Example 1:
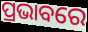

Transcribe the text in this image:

ପ୍ରଭାବରେ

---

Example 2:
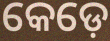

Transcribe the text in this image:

କେଡ଼େ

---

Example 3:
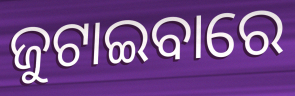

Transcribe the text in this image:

ଜୁଟାଇବାରେ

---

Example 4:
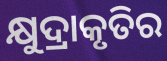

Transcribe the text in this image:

କ୍ଷୁଦ୍ରାକୃତିର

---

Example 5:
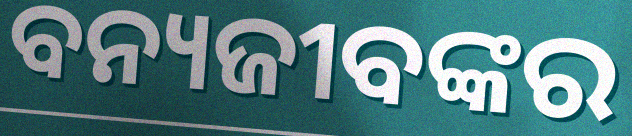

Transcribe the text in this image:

ବନ୍ୟଜୀବଙ୍କର